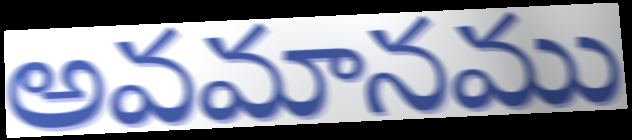
అవమానము